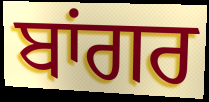
ਬਾਂਗਰ